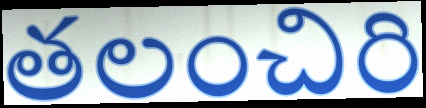
తలంచిరి